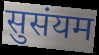
सुसंयम